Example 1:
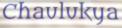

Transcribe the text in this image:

Chaulukya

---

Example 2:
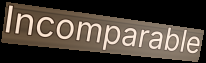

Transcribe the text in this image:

Incomparable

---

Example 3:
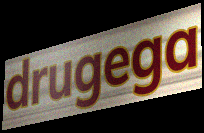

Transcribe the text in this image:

drugega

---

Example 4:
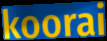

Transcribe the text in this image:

koorai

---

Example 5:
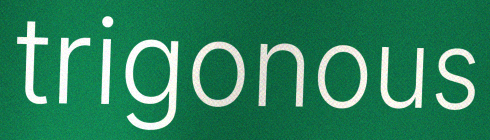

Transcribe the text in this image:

trigonous